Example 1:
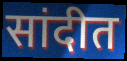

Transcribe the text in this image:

सांदीत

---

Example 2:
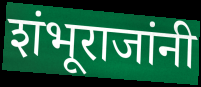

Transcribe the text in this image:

शंभूराजांनी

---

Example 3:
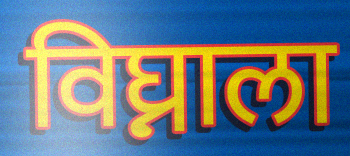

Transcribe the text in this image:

विघ्नाला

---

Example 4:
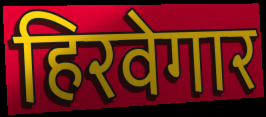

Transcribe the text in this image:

हिरवेगार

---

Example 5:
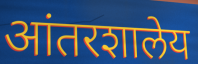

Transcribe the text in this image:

आंतरशालेय